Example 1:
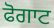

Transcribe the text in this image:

ਫੋਗਾਟ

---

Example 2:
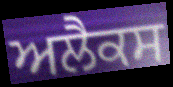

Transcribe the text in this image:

ਅਲੈਕਸ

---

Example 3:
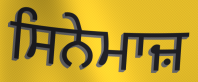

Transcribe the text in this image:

ਸਿਨੇਮਾਜ਼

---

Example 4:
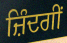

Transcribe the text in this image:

ਜ਼ਿੰਦਗੀਂ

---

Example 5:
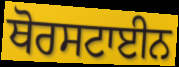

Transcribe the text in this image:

ਥੋਰਸਟਾਈਨ